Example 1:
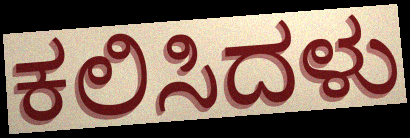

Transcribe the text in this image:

ಕಲಿಸಿದಳು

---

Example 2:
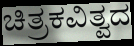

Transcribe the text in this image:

ಚಿತ್ರಕವಿತ್ವದ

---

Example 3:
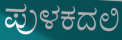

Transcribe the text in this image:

ಪುಳಕದಲಿ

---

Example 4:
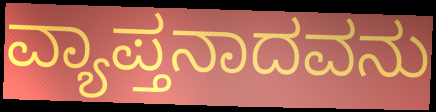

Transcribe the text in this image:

ವ್ಯಾಪ್ತನಾದವನು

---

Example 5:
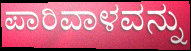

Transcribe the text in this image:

ಪಾರಿವಾಳವನ್ನು